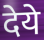
देये